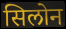
सिलोन